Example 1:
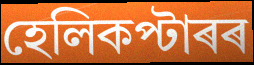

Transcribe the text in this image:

হেলিকপ্টাৰৰ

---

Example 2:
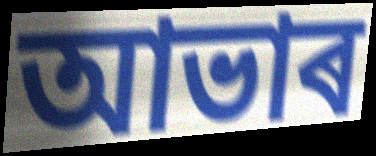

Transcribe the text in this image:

আভাৰ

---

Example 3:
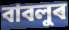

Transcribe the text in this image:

বাবলুৰ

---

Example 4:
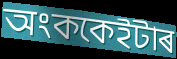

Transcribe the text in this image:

অংককেইটাৰ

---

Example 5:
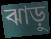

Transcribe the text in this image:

ঝাড়ু